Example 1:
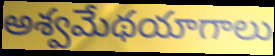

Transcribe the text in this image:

అశ్వమేథయాగాలు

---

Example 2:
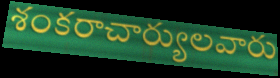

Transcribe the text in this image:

శంకరాచార్యులవారు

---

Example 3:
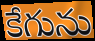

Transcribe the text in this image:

కేగును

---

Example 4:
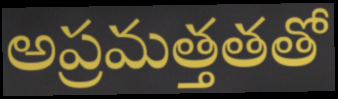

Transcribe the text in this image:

అప్రమత్తతతో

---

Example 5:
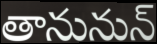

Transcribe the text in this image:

తానునున్